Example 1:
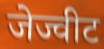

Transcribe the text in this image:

जेज्वीट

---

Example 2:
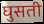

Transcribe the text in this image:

घुसती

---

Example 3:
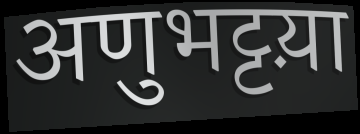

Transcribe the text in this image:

अणुभट्टय़ा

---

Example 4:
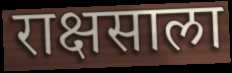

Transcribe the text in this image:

राक्षसाला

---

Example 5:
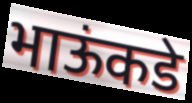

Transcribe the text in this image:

भाऊंकडे